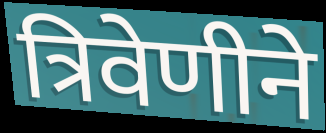
त्रिवेणीने